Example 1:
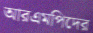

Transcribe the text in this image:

আরএমপিদের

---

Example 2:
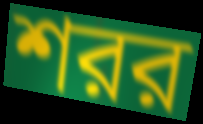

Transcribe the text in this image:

শরর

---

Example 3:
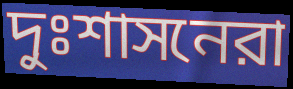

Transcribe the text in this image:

দুঃশাসনেরা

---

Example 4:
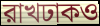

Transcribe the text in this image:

রাখঢাকও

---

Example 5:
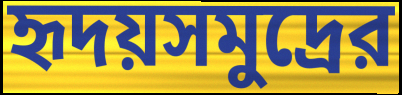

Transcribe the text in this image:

হৃদয়সমুদ্রের